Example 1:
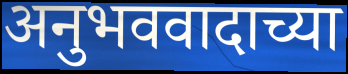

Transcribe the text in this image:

अनुभववादाच्या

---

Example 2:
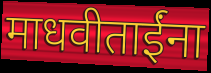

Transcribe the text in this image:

माधवीताईंना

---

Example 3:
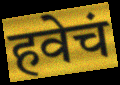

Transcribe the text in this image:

हवेचं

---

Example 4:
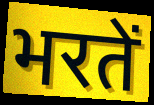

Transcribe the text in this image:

भरतें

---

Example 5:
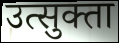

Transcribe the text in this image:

उत्सुक्ता